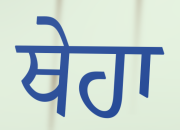
ਥੇਹਾ